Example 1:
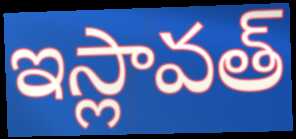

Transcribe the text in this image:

ఇస్లావత్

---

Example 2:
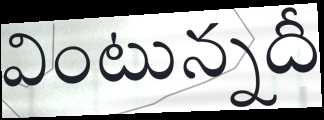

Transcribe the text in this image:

వింటున్నదీ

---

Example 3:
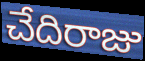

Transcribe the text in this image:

చేదిరాజు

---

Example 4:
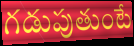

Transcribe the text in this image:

గడుపుతుంటే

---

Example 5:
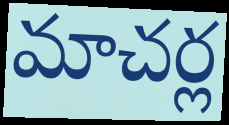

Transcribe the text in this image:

మాచర్ల